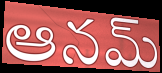
ఆనమ్